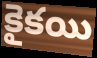
కైకయి